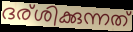
ദര്ശിക്കുന്നത്